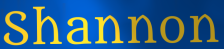
Shannon